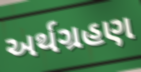
અર્થગ્રહણ